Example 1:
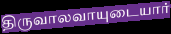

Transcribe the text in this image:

திருவாலவாயுடையார்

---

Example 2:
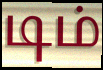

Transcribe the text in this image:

டிம்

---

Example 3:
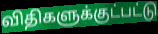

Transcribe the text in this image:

விதிகளுக்குட்பட்டு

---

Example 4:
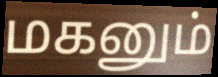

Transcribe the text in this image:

மகனும்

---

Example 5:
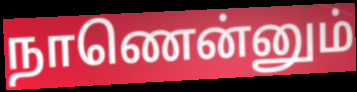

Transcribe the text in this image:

நாணென்னும்